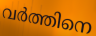
വർത്തിനെ